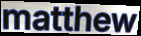
matthew